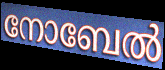
നോബേൽ